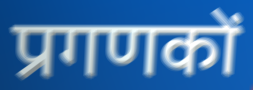
प्रगणकों